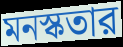
মনস্কতার